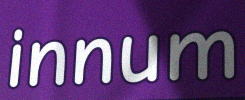
innum